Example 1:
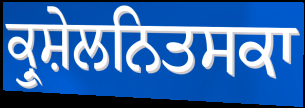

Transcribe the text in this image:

ਕ੍ਰੁਸ਼ੇਲਨਿਤਸਕਾ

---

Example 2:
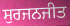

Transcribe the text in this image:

ਸੁਰਜਨਜੀਤ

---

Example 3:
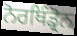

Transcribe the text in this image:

ਨੋਰਥਿੰਡ੍ਰੋਨ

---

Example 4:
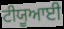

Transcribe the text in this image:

ਟੀਯੂਆਈ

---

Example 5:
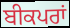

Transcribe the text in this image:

ਬੀਕਪਰਾਂ